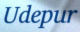
Udepur